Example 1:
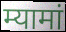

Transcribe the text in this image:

म्यामां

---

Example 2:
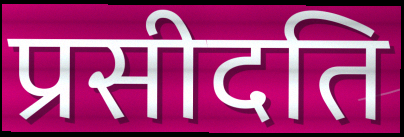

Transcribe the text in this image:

प्रसीदति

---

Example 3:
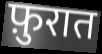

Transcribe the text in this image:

फ़ुरात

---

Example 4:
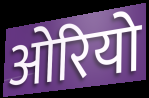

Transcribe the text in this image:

ओरियो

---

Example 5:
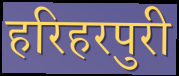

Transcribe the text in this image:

हरिहरपुरी